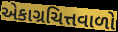
એકાગ્રચિત્તવાળો